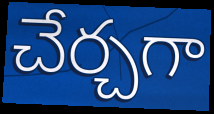
చేర్చగా